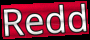
Redd